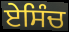
ਏਸਿੰਚ